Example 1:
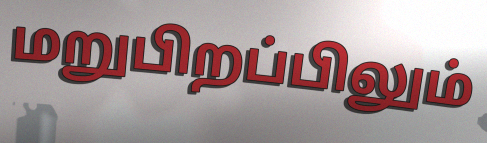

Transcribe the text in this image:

மறுபிறப்பிலும்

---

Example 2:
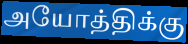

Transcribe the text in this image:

அயோத்திக்கு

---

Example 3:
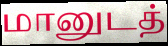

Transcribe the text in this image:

மானுடத்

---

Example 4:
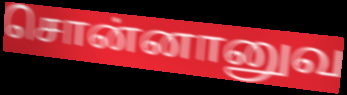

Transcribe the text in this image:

சொன்னானுவ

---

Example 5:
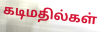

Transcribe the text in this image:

கடிமதில்கள்